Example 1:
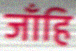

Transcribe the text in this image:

जाँहि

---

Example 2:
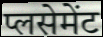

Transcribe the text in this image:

प्लसेमेंट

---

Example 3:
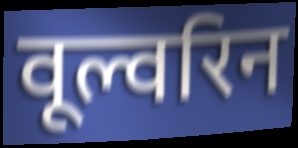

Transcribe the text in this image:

वूल्वरिन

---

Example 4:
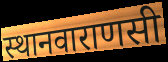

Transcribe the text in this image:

स्थानवाराणसी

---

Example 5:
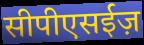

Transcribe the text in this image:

सीपीएसईज़